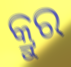
କ୍ରୁର